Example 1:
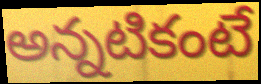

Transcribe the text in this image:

అన్నటికంటే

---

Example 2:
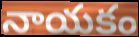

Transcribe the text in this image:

నాయకం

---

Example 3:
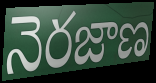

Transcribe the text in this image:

నెరజాణ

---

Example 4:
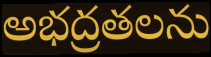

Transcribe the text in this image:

అభద్రతలను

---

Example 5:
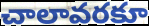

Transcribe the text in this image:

చాలావరకూ